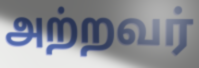
அற்றவர்